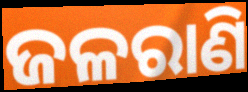
ଜଳରାଣି